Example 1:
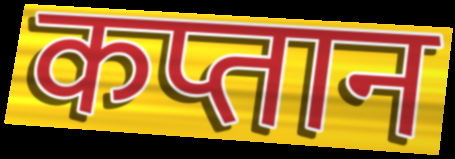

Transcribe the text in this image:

कप्‍तान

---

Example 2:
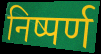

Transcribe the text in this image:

निष्पर्ण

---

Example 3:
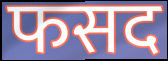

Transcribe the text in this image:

फसद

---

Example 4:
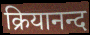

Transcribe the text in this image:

क्रियानन्द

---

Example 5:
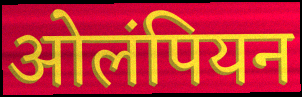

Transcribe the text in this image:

ओलंपियन